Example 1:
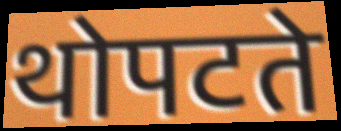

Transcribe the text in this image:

थोपटते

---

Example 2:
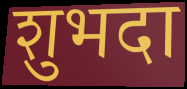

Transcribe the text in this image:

शुभदा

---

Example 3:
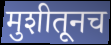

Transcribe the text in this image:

मुशीतूनच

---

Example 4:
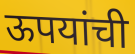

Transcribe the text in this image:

ऊपयांची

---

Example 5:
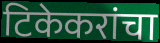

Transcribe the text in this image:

टिकेकरांचा